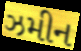
ઝમીન